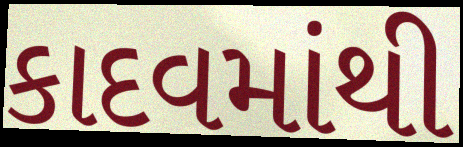
કાદવમાંથી